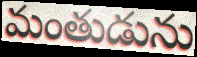
మంతుడును